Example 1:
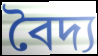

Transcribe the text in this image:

বৈদ্য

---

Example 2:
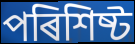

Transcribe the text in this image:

পৰিশিষ্ট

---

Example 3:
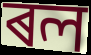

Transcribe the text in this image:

ৰল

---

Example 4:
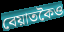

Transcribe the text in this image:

বেয়াতকৈও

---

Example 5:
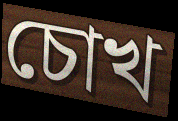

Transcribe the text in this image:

চোখ